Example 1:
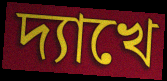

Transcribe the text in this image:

দ্যাখে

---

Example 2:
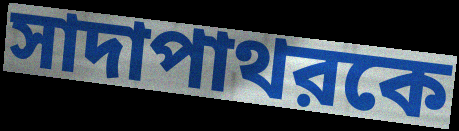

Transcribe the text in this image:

সাদাপাথরকে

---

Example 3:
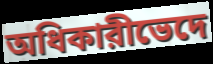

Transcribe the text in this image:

অধিকারীভেদে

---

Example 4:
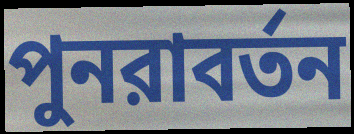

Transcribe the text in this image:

পুনরাবর্তন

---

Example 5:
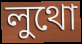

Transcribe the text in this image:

লুথো